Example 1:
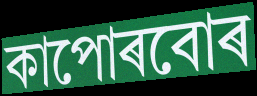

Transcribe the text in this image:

কাপোৰবোৰ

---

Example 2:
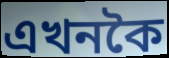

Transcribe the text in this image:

এখনকৈ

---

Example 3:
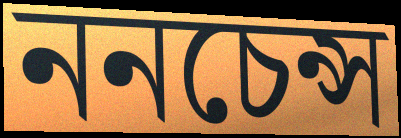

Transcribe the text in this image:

ননচেন্স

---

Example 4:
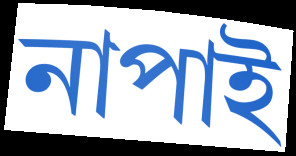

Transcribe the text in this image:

নাপাই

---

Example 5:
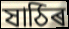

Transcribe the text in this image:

ষাঠিৰ